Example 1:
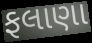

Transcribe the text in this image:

ફલાણા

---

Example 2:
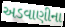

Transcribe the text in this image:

અડવાણીના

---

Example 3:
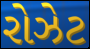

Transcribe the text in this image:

રોઝેટ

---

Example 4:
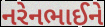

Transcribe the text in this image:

નરેનભાઈને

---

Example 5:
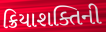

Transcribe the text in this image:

ક્રિયાશક્તિની